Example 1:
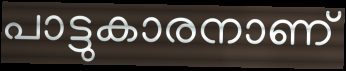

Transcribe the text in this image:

പാട്ടുകാരനാണ്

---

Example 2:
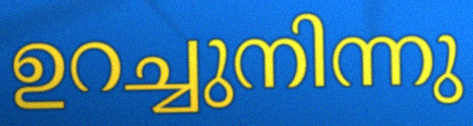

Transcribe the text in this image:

ഉറച്ചുനിന്നു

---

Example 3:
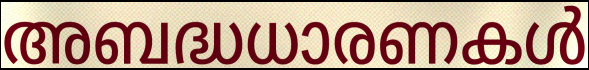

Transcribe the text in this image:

അബദ്ധധാരണകൾ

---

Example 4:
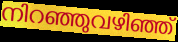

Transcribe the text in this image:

നിറഞ്ഞുവഴിഞ്ഞ്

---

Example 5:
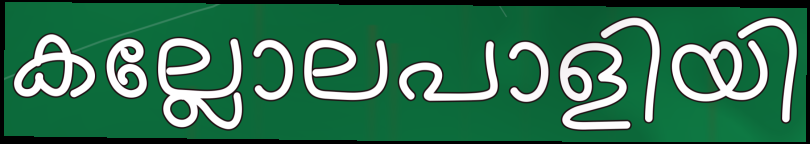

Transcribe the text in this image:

കല്ലോലപാളിയി